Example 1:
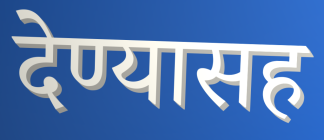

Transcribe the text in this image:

देण्यासह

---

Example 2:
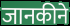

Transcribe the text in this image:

जानकीने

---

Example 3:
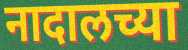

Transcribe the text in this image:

नादालच्या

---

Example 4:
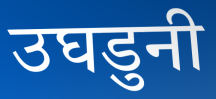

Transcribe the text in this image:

उघडुनी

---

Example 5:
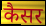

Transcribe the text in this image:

कैसर